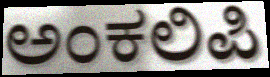
ಅಂಕಲಿಪಿ